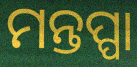
ମନ୍ତପ୍ପା